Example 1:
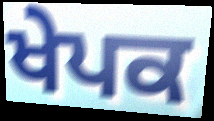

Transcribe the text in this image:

ਖੇਪਕ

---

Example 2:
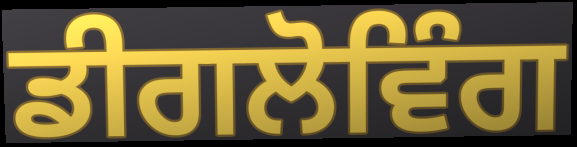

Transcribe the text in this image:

ਡੀਗਲੋਵਿੰਗ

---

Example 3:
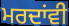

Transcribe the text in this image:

ਮਰਦਾਂਵੀ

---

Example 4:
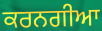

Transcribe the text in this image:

ਕਰਨਗੀਆ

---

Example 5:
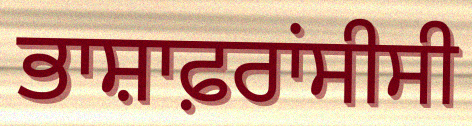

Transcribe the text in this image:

ਭਾਸ਼ਾਫ਼ਰਾਂਸੀਸੀ